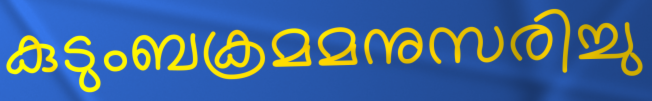
കുടുംബക്രമമനുസരിച്ചു